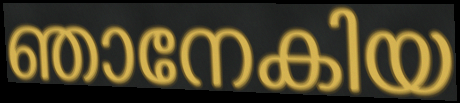
ഞാനേകിയ